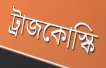
ট্রাজকোস্কি